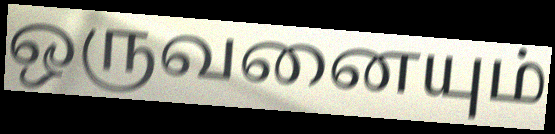
ஒருவனையும்